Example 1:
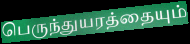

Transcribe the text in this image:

பெருந்துயரத்தையும்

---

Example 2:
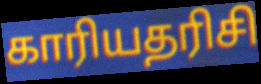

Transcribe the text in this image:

காரியதரிசி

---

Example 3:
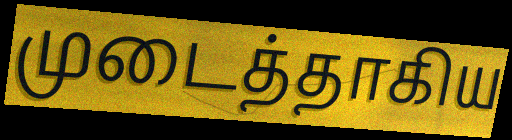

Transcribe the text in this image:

முடைத்தாகிய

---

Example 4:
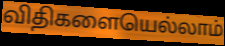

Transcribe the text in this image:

விதிகளையெல்லாம்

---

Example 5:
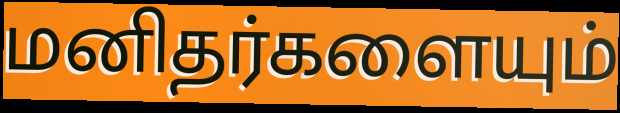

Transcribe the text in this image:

மனிதர்களையும்